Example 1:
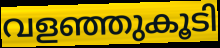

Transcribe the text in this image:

വളഞ്ഞുകൂടി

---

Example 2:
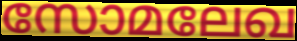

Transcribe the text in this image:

സോമലേഖ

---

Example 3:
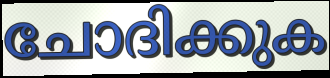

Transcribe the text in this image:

ചോദിക്കുക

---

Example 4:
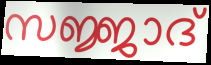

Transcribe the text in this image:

സജ്ജാദ്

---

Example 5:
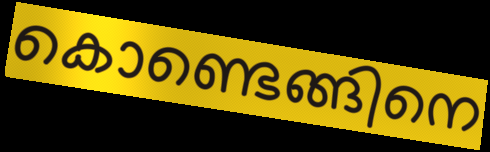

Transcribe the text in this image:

കൊണ്ടെങ്ങിനെ